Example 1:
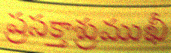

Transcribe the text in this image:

ప్రసక్తాశ్రుముఖీ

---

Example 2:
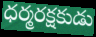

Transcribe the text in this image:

ధర్మరక్షకుడు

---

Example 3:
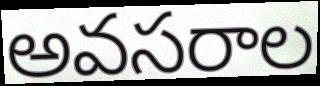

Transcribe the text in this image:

అవసరాల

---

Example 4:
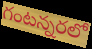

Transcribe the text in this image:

గంటన్నరలో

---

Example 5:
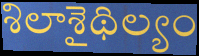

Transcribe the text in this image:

శిలాశైథిల్యం